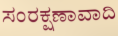
ಸಂರಕ್ಷಣಾವಾದಿ